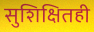
सुशिक्षितही